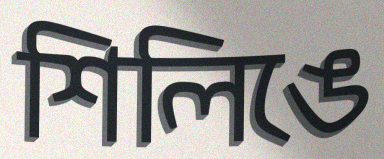
শিলিঙে